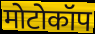
मोटोकॉप